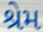
શ્રેમ